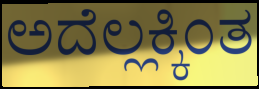
ಅದೆಲ್ಲಕ್ಕಿಂತ